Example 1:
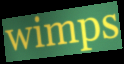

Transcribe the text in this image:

wimps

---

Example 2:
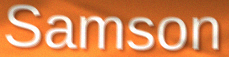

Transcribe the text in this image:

Samson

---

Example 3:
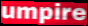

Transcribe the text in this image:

umpire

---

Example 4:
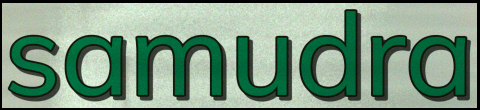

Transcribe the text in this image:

samudra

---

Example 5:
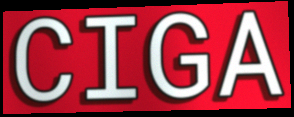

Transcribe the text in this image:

CIGA